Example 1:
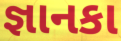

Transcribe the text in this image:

જ્ઞાનકા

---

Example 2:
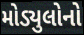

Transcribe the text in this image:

મોડ્યુલોનો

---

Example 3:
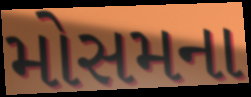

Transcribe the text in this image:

મોસમના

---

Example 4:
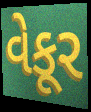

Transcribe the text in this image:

વેકૂર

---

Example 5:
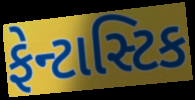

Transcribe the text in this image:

ફેન્ટાસ્ટિક